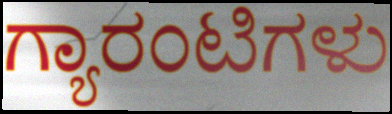
ಗ್ಯಾರಂಟಿಗಳು